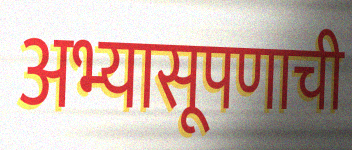
अभ्यासूपणाची